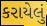
કરાયેલું